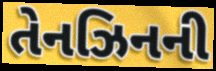
તેનઝિનની